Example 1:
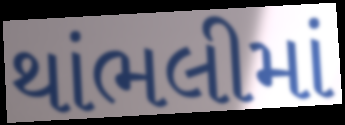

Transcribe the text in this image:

થાંભલીમાં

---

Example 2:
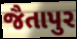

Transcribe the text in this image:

જૈતાપુર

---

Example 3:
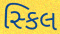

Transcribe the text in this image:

સ્કિલ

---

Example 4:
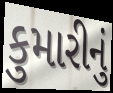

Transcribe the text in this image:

કુમારીનું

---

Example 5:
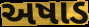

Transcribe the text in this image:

અષાડ